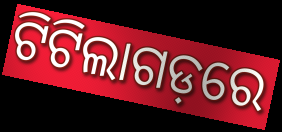
ଟିଟିଲାଗଡ଼ରେ